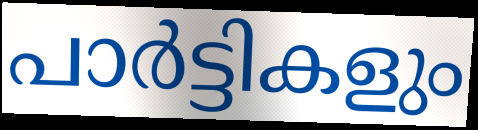
പാർട്ടികളും